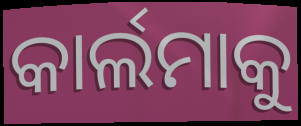
କାର୍ଲମାକୁ